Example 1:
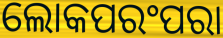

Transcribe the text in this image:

ଲୋକପରଂପରା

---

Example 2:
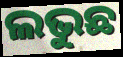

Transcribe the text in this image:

ଲଭୁଛ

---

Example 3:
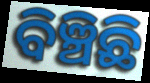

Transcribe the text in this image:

ବିଞ୍ଚିଛି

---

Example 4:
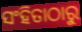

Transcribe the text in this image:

ସଂହିତାଠାରୁ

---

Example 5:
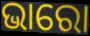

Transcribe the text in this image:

ଭାରୋ